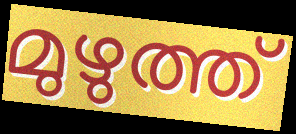
മുഴുത്ത്